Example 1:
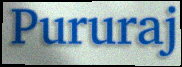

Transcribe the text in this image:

Pururaj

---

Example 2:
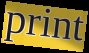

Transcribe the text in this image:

print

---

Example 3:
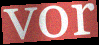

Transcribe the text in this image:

vor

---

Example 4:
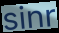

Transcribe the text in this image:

sinr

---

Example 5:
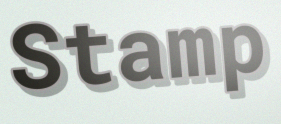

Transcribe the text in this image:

Stamp